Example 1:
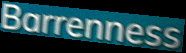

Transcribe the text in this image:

Barrenness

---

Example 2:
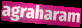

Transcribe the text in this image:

agraharam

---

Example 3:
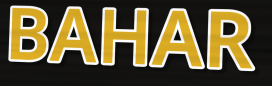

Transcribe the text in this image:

BAHAR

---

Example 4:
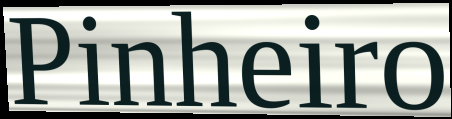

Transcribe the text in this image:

Pinheiro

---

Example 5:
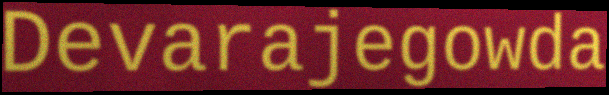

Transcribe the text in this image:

Devarajegowda